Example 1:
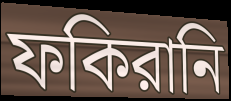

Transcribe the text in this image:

ফকিরানি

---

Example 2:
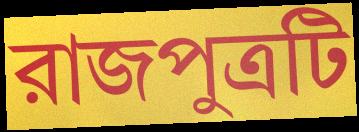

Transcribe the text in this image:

রাজপুত্রটি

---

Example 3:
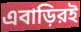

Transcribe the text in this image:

এবাড়িরই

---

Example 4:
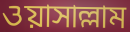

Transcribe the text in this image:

ওয়াসাল্লাম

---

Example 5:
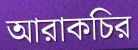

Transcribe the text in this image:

আরাকচির